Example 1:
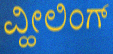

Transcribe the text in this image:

ವ್ಹೀಲಿಂಗ್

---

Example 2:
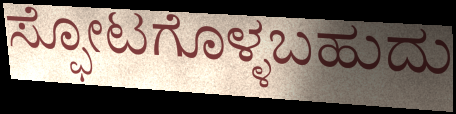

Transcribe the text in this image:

ಸ್ಫೋಟಗೊಳ್ಳಬಹುದು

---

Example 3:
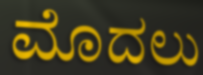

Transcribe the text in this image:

ಮೊದಲು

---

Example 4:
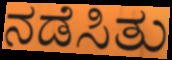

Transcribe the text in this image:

ನಡೆಸಿತು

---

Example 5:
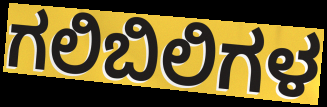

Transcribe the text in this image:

ಗಲಿಬಿಲಿಗಳ